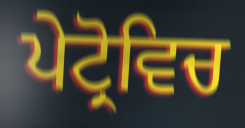
ਪੇਟ੍ਰੋਵਿਚ